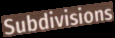
Subdivisions